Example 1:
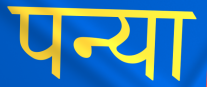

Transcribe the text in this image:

पन्या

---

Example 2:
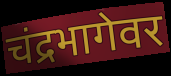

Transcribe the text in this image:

चंद्रभागेवर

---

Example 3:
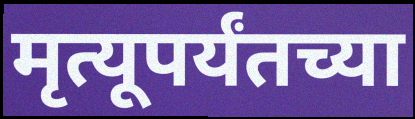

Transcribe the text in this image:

मृत्यूपर्यंतच्या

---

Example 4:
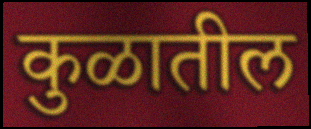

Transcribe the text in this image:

कुळातील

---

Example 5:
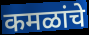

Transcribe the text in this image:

कमळांचे